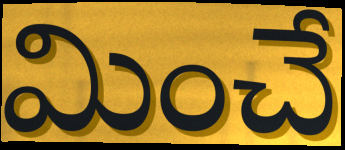
మించే